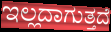
ಇಲ್ಲದಾಗುತ್ತದೆ